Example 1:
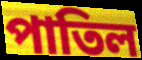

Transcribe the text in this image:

পাতিল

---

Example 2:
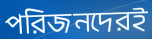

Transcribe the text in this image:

পরিজনদেরই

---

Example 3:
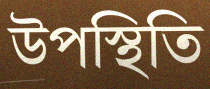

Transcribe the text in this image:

উপস্থিতি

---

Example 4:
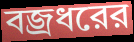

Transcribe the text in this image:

বজ্রধরের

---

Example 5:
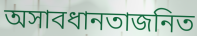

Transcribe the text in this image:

অসাবধানতাজনিত